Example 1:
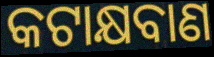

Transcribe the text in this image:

କଟାକ୍ଷବାଣ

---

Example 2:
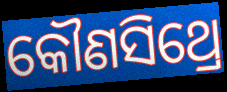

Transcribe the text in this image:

କୌଣସିଥ୍ରେ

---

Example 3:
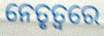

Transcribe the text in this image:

ନେତୃତ୍ଵରେ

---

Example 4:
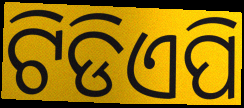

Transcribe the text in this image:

ଟିଡିଏପି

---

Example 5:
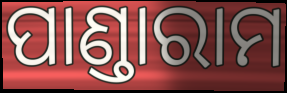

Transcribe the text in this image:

ପାଣ୍ଡାରାମ